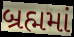
બ્રહ્મમાં